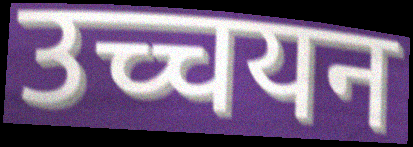
उच्चयन